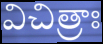
విచిత్రాః